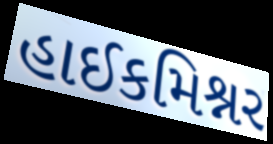
હાઈકમિશ્નર